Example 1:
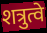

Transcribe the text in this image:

शत्रुत्वे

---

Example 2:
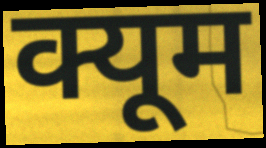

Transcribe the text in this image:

क्यूम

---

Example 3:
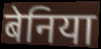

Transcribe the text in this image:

बेनिया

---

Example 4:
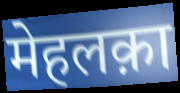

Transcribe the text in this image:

मेहलक़ा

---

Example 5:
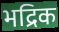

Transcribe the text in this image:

भद्रिक